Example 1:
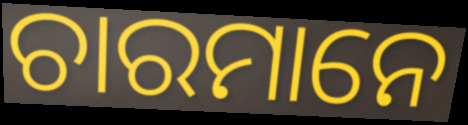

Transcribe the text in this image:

ଚାରମାନେ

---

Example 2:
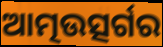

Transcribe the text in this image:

ଆତ୍ମଉତ୍ସର୍ଗର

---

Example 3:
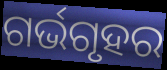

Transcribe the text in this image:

ଗର୍ଭଗୃହର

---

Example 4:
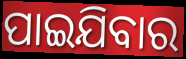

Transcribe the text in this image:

ପାଇଯିବାର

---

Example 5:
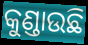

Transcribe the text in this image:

କୁଣ୍ଡାଉଛି